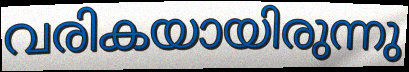
വരികയായിരുന്നു